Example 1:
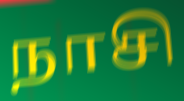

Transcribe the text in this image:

நாசி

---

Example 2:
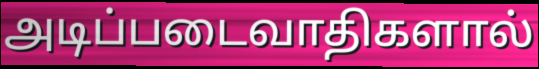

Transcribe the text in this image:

அடிப்படைவாதிகளால்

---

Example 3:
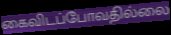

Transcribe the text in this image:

கைவிடப்போவதில்லை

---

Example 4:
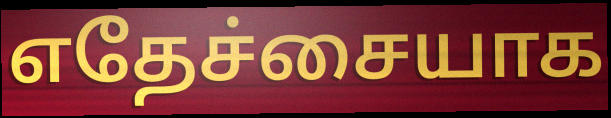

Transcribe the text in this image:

எதேச்சையாக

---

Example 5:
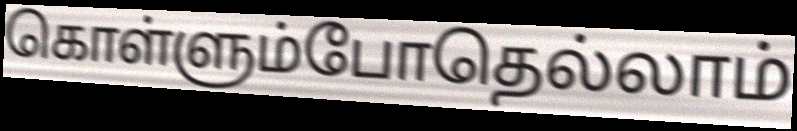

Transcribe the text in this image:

கொள்ளும்போதெல்லாம்